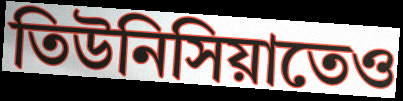
তিউনিসিয়াতেও